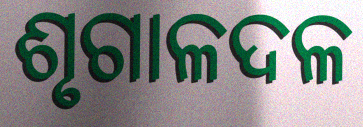
ଶୃଗାଳଦଳ